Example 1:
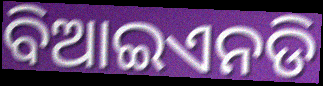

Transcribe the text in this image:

ବିଆଇଏନଡି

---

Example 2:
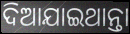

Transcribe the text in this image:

ଦିଆଯାଇଥାନ୍ତା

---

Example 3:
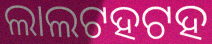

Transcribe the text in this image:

ଲାଲଟହଟହ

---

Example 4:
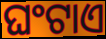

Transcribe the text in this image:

ଘଂଟାଏ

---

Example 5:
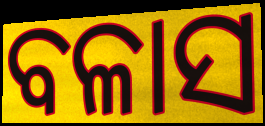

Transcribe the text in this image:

ବଳାସ